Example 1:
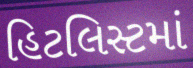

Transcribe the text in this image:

હિટલિસ્ટમાં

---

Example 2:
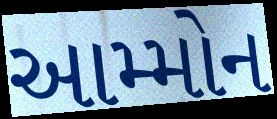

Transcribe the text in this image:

આમ્મોન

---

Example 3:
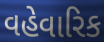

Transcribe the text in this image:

વહેવારિક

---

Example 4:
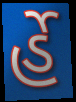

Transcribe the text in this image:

ર્હે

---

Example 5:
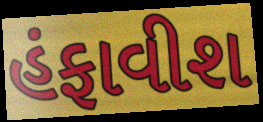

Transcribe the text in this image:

હંફાવીશ